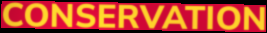
CONSERVATION